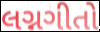
લગ્નગીતો